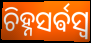
ଚିହ୍ନସର୍ଵସ୍ଵ